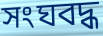
সংঘবদ্ধ